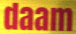
daam